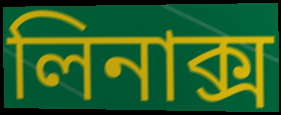
লিনাক্স